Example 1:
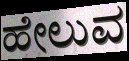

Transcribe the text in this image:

ಹೇಲುವ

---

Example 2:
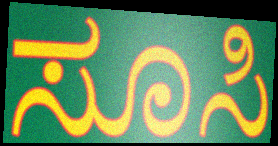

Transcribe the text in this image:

ಸೂಸಿ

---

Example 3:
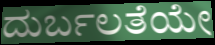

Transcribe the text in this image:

ದುರ್ಬಲತೆಯೇ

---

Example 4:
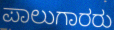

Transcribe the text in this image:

ಪಾಲುಗಾರರು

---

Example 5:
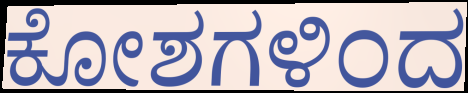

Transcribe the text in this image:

ಕೋಶಗಳಿಂದ